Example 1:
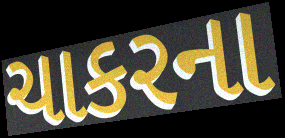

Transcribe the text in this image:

ચાકરના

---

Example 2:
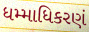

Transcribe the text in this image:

ધમ્માધિકરણં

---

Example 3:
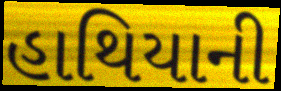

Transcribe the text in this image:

હાથિયાની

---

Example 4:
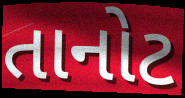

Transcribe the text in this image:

તાનોટ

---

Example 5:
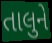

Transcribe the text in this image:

તાલુને